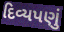
દિવ્યપણું